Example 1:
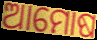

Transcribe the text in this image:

ଆମୋଷ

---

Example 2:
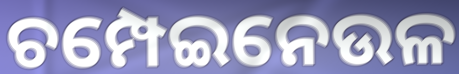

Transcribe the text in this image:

ଚମ୍ପେଇନେଉଳ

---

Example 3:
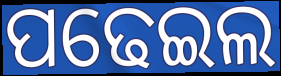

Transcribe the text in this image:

ପଢେଇଲ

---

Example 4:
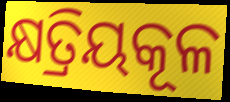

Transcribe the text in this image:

କ୍ଷତ୍ରିୟକୂଳ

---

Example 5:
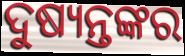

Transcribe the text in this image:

ଦୁଷ୍ୟନ୍ତଙ୍କର